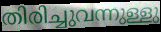
തിരിച്ചുവന്നുള്ളു